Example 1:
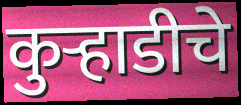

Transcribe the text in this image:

कुऱ्हाडीचे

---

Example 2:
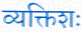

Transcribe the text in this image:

व्यक्तिशः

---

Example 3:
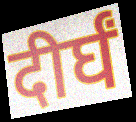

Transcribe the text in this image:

दीर्घं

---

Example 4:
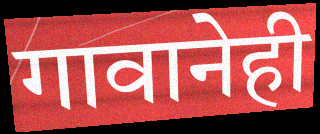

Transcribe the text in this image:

गावानेही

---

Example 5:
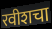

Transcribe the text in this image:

रवीशचा